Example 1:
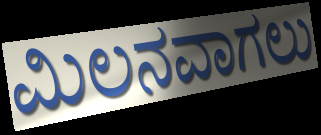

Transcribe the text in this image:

ಮಿಲನವಾಗಲು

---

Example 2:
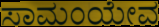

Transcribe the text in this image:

ಸಾಮಂಯೇವ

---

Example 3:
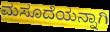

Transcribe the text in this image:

ಮಸೂದೆಯನ್ನಾಗಿ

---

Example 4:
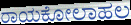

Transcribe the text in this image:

ರಾಯಕೋಲಾಹಲ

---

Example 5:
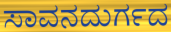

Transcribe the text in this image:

ಸಾವನದುರ್ಗದ